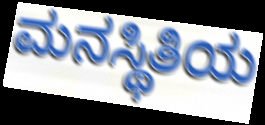
ಮನಸ್ಥಿತಿಯ